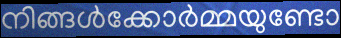
നിങ്ങൾക്കോർമ്മയുണ്ടോ